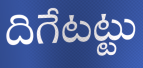
దిగేటట్టు